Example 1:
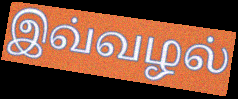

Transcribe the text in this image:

இவ்வழல்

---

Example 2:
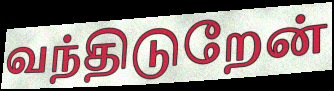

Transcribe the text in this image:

வந்திடுறேன்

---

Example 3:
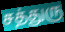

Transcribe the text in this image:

சத்துரு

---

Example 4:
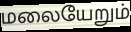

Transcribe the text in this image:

மலையேறும்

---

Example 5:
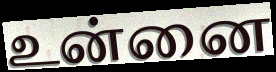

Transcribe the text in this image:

உன்னை